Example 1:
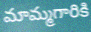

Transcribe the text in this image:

మామ్మగారికి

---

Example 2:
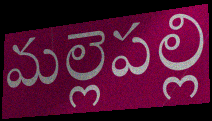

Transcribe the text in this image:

మల్లెపల్లి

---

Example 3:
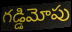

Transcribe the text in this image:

గడ్డిమోపు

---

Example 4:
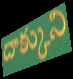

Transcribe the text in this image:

దాక్కుని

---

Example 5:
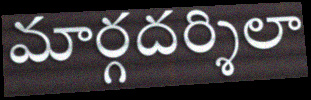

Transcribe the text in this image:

మార్గదర్శిలా